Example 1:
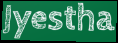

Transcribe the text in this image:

Jyestha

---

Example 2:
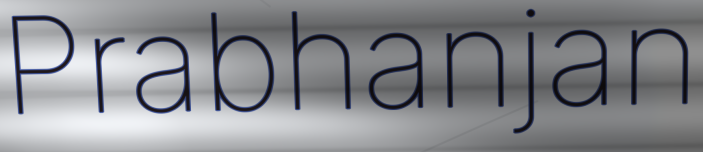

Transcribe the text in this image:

Prabhanjan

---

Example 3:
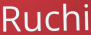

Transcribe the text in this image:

Ruchi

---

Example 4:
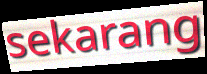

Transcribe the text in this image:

sekarang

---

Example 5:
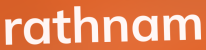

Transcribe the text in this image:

rathnam